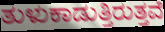
ತುಳುಕಾಡುತ್ತಿರುತ್ತವೆ